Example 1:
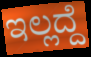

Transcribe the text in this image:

ಇಲ್ಲದ್ದೆ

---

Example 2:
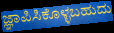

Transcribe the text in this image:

ಜ್ಞಾಪಿಸಿಕೊಳ್ಳಬಹುದು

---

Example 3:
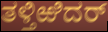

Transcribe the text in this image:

ತಳ್ತಿಱಿದರ್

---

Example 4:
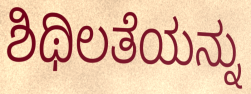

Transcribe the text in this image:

ಶಿಥಿಲತೆಯನ್ನು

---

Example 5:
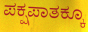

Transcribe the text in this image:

ಪಕ್ಷಪಾತಕ್ಕೂ